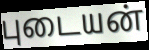
புடையன்